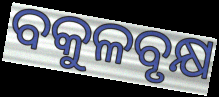
ବକୁଳବୃକ୍ଷ